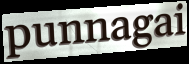
punnagai